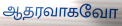
ஆதரவாகவோ